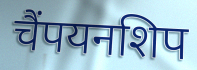
चैंपयनशिप